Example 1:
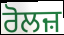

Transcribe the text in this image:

ਰੋਲਜ਼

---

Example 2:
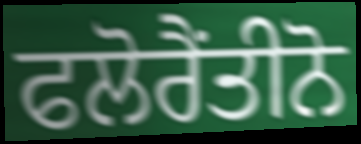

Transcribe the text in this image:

ਫਲੋਰੈਂਤੀਨੋ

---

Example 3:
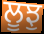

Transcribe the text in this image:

ਲੂਝੁ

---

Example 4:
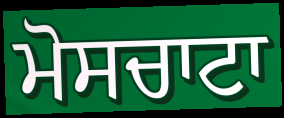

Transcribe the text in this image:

ਮੋਸਚਾਟਾ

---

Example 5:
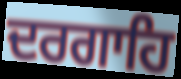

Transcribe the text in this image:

ਦਰਗਾਹਿ